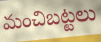
మంచిబట్టలు